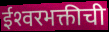
ईश्वरभक्तीची